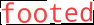
footed